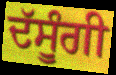
ਦੱਸੂੰਗੀ